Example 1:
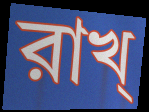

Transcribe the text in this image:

রাখ্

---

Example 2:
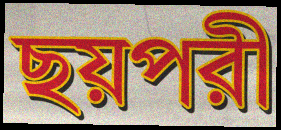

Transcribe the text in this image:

ছয়পরী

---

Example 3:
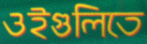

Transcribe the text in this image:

ওইগুলিতে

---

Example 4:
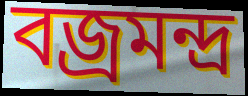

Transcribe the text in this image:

বজ্রমন্দ্র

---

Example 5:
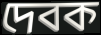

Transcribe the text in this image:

দেবক